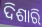
ଦିଶାରି